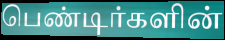
பெண்டிர்களின்